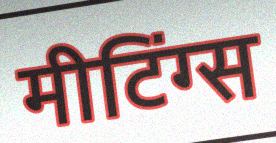
मीटिंग्स